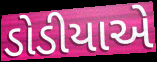
ડોડીયાએ